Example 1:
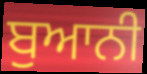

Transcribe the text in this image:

ਬੁਆਨੀ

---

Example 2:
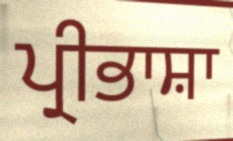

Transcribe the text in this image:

ਪ੍ਰੀਭਾਸ਼ਾ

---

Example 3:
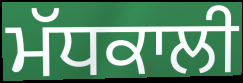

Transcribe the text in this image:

ਮੱਧਕਾਲੀ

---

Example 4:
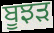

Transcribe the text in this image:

ਬੂਝੜ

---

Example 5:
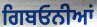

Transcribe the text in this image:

ਗਿਬਓਨੀਆਂ